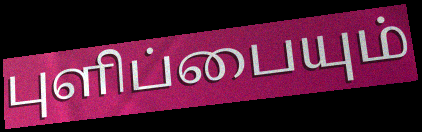
புளிப்பையும்